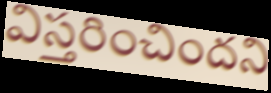
విస్తరించిందని